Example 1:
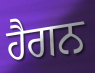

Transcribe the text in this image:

ਹੈਗਨ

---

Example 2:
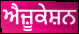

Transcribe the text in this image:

ਐਜ਼ੂਕੇਸ਼ਨ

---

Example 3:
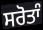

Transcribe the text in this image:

ਸਰੋਤਾੰ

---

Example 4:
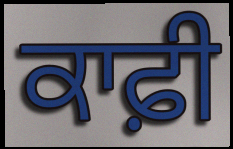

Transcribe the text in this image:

ਕਾਫ਼ੀ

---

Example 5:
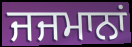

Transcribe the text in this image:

ਜਜਮਾਨਾਂ